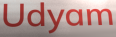
Udyam